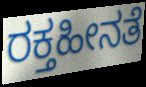
ರಕ್ತಹೀನತೆ